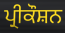
ਪ੍ਰੀਕੌਸ਼ਨ